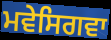
ਮਵੇਸਿਗਵਾ